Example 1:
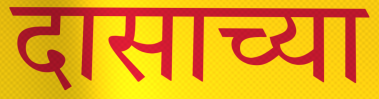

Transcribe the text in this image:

दासाच्या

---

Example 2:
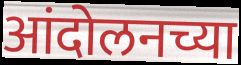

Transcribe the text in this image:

आंदोलनच्या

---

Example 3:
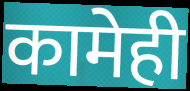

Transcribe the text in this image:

कामेही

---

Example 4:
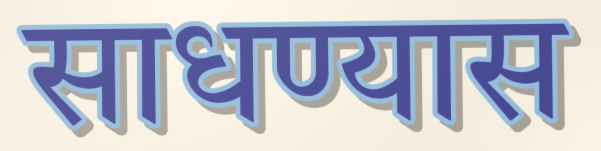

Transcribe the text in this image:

साधण्यास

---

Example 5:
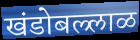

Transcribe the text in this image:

खंडोबल्लाळ